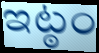
ఇట్ఠం